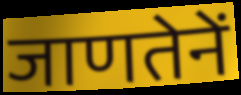
जाणतेनें